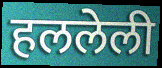
हललेली